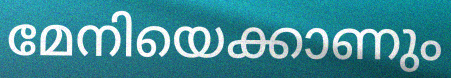
മേനിയെക്കാണും